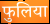
फुलिया